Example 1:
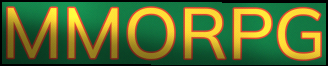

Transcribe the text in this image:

MMORPG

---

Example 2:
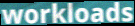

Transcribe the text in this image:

workloads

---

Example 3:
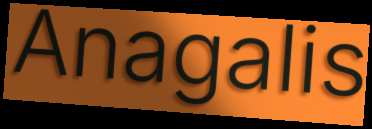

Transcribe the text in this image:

Anagalis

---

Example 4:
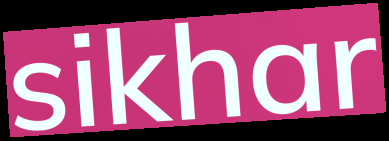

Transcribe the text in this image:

sikhar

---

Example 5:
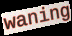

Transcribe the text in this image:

waning